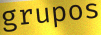
grupos